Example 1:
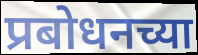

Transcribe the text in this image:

प्रबोधनच्या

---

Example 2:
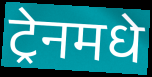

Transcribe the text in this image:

ट्रेनमधे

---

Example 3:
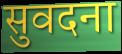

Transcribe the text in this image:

सुवदना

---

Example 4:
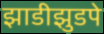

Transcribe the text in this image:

झाडीझुडपे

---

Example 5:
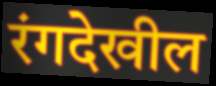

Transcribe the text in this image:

रंगदेखील